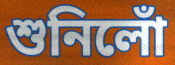
শুনিলোঁ